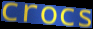
crocs